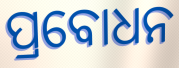
ପ୍ରବୋଧନ